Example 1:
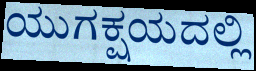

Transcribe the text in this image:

ಯುಗಕ್ಷಯದಲ್ಲಿ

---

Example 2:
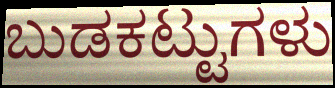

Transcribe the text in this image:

ಬುಡಕಟ್ಟುಗಳು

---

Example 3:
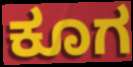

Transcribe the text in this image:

ಕೂಗ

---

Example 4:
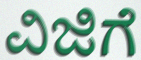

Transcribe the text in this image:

ವಿಜಿಗೆ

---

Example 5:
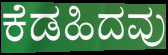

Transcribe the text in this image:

ಕೆಡಹಿದವು